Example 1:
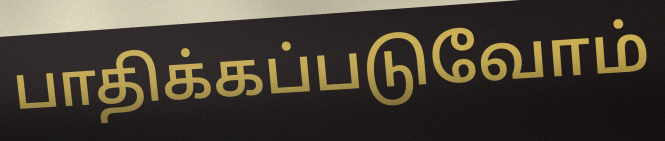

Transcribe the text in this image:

பாதிக்கப்படுவோம்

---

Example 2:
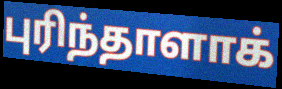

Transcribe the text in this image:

புரிந்தாளாக்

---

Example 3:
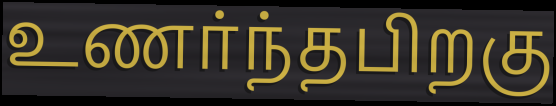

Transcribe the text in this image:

உணர்ந்தபிறகு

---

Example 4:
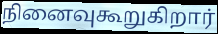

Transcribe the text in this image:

நினைவுகூறுகிறார்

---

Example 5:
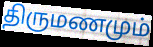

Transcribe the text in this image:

திருமணமும்